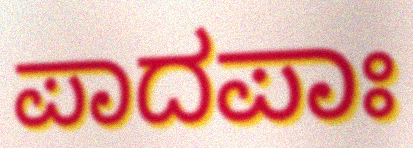
ಪಾದಪಾಃ